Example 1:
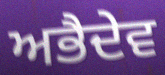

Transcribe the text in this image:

ਅਭੈਦੇਵ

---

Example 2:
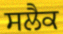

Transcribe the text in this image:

ਸਲੈਕ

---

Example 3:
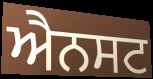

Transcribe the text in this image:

ਐਨਸਟ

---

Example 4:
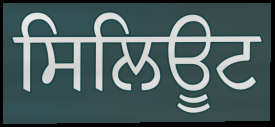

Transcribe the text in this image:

ਸਿਲਿਊਟ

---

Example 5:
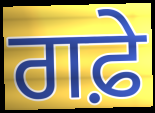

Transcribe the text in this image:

ਗਫ਼ੇ